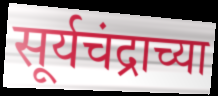
सूर्यचंद्राच्या